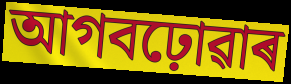
আগবঢ়োৱাৰ